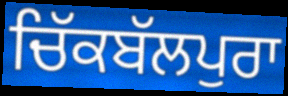
ਚਿੱਕਬੱਲਪੁਰਾ